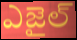
ఎజైల్